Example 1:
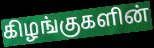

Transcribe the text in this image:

கிழங்குகளின்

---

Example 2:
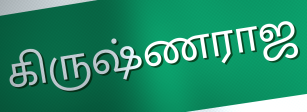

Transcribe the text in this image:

கிருஷ்ணராஜ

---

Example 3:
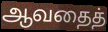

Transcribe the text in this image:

ஆவதைத்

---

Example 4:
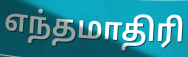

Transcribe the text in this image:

எந்தமாதிரி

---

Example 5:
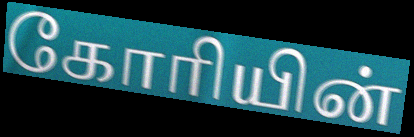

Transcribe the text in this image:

கோரியின்